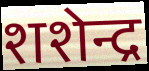
शशेन्द्र